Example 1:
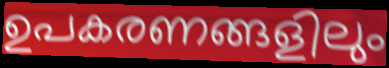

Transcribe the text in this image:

ഉപകരണങ്ങളിലും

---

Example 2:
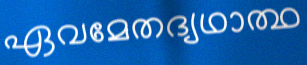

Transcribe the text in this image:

ഏവമേതദ്യഥാത്ഥ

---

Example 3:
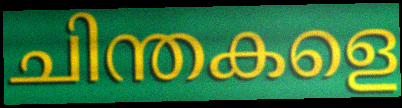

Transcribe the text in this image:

ചിന്തകളെ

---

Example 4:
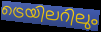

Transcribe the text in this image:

ട്രെയിലറിലും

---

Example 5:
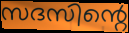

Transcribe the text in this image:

സദസിന്റെ